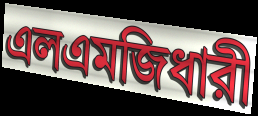
এলএমজিধারী